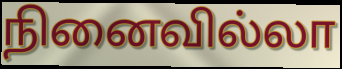
நினைவில்லா